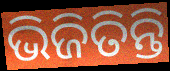
ଭିଜିତିନ୍ତି